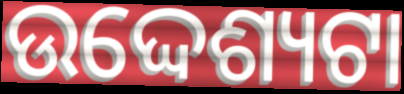
ଉଦ୍ଦେଶ୍ୟଟା